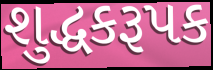
શુદ્ધકરૂપક